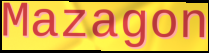
Mazagon